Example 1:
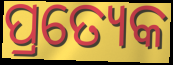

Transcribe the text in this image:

ପ୍ରତ୍ୟେକ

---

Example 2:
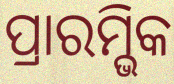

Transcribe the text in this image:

ପ୍ରାରମ୍ଭିକ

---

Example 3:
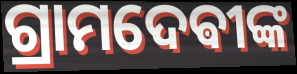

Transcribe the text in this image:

ଗ୍ରାମଦେଵୀଙ୍କ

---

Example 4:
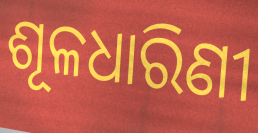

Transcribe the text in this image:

ଶୂଳଧାରିଣୀ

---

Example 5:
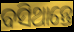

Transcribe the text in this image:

ବସିଥାନ୍ତେ